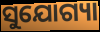
ସୁଯୋଗ୍ୟା